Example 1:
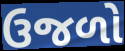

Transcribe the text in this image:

ઉજળો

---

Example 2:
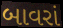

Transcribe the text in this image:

બાવરાં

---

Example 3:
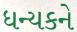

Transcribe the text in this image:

ધન્યકને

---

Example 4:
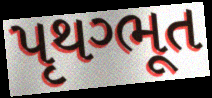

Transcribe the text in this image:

પૃથગ્ભૂત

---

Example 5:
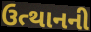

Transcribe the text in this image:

ઉત્થાનની